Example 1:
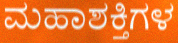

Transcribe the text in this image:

ಮಹಾಶಕ್ತಿಗಳ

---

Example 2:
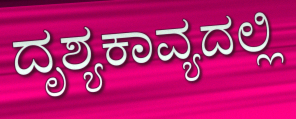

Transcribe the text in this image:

ದೃಶ್ಯಕಾವ್ಯದಲ್ಲಿ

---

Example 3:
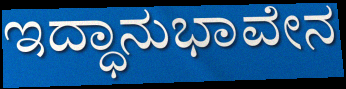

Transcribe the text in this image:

ಇದ್ಧಾನುಭಾವೇನ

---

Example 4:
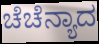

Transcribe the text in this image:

ಚೆಚೆನ್ಯಾದ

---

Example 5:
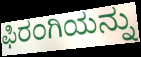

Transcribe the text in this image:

ಫಿರಂಗಿಯನ್ನು